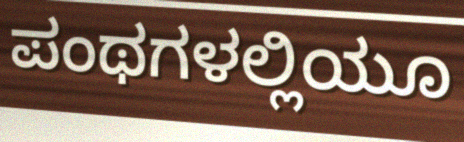
ಪಂಥಗಳಲ್ಲಿಯೂ